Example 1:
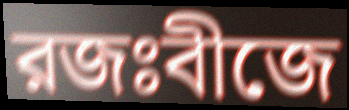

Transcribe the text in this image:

রজঃবীজে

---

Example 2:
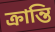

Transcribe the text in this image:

ক্রান্তি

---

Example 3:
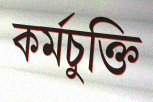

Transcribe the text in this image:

কর্মচুক্তি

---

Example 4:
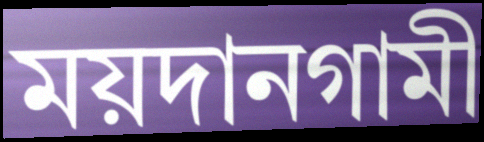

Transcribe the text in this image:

ময়দানগামী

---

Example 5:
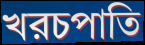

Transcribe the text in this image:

খরচপাতি